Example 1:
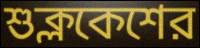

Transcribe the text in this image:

শুক্লকেশের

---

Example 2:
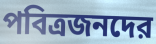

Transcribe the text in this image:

পবিত্রজনদের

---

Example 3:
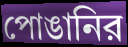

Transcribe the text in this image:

পোঙানির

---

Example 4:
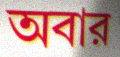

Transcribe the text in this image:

অবার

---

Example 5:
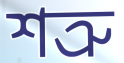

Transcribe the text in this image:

শত্রু